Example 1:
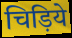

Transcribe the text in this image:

चिड़िये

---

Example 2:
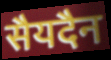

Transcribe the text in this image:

सैयदैन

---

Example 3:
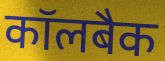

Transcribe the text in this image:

कॉलबैक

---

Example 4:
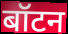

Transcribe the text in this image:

बॉटन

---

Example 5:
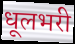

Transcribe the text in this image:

धूलभरी